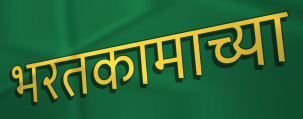
भरतकामाच्या